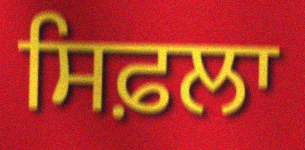
ਸਿਫ਼ਲਾ